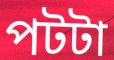
পটটা